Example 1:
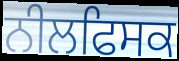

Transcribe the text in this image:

ਨੀਲਫਿਸਕ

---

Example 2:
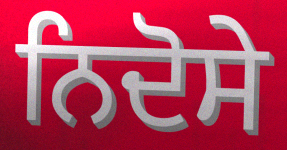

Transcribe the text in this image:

ਨਿਦੋਸੇ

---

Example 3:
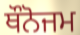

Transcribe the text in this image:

ਥੌਨੋਜਮ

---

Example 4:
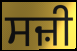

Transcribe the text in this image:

ਸਜ਼ੀ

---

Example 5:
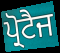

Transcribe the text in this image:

ਪ੍ਰੋਟੈਜ